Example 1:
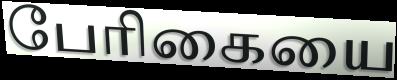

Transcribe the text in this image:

பேரிகையை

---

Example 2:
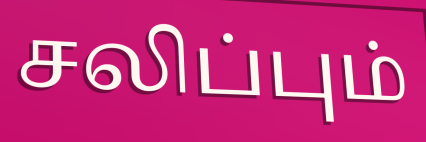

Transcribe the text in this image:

சலிப்பும்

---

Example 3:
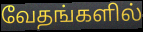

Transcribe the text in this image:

வேதங்களில்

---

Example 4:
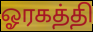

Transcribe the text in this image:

ஓரகத்தி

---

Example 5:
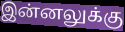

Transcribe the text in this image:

இன்னலுக்கு